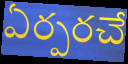
ఏర్పరచే